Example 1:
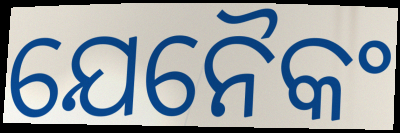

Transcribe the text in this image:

ଯେନୈକଂ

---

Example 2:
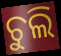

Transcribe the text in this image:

ଚୁଲି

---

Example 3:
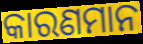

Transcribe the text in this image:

କାରଣମାନ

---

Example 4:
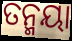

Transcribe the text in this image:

ତନ୍ମୟା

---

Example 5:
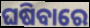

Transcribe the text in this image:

ଘଷିବାରେ